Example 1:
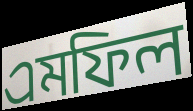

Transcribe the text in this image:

এমফিল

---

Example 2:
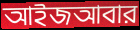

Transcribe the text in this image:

আইজআবার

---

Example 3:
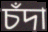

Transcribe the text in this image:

চঁদা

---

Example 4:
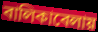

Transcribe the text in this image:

বালিকাবেলায়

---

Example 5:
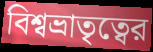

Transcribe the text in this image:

বিশ্বভ্রাতৃত্বের